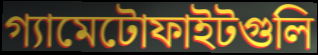
গ্যামেটোফাইটগুলি